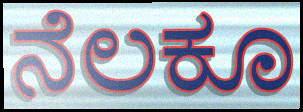
ನೆಲಕೂ